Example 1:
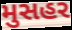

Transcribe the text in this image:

મુસહર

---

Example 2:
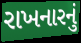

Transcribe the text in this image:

રાખનારનું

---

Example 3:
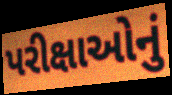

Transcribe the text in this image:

પરીક્ષાઓનું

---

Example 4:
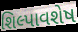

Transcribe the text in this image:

શિલ્પાવશેષ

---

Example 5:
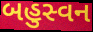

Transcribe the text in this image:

બહુસ્વન